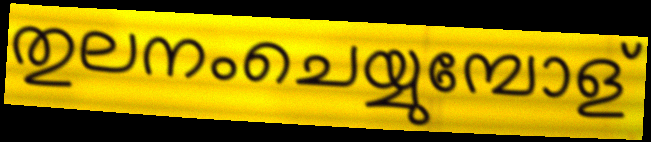
തുലനംചെയ്യുമ്പോള്